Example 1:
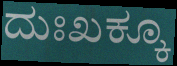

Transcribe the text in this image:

ದುಃಖಕ್ಕೂ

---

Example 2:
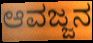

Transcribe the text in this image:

ಆವಜ್ಜನ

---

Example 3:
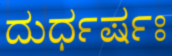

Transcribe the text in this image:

ದುರ್ಧರ್ಷಃ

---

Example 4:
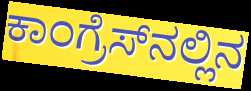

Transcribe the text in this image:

ಕಾಂಗ್ರೆಸ್‌ನಲ್ಲಿನ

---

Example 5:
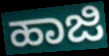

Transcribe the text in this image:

ಹಾಜಿ